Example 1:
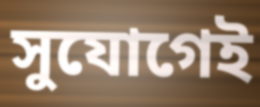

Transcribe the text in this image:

সুযোগেই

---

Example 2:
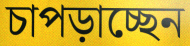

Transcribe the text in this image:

চাপড়াচ্ছেন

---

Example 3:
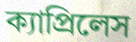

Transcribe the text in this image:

ক্যাপ্রিলেস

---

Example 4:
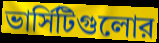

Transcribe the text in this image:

ভার্সিটিগুলোর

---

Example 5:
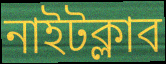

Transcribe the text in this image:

নাইটক্লাব